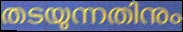
തടയുന്നതിനും